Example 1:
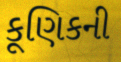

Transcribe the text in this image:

કૂણિકની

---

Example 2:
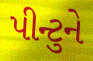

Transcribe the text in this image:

પીન્ટુને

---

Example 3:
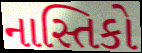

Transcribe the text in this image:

નાસ્તિકો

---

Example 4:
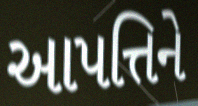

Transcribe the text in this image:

આપત્તિને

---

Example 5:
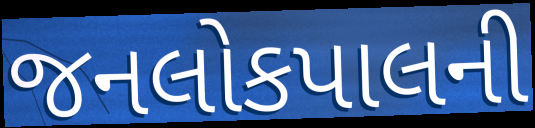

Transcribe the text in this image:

જનલોકપાલની